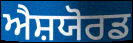
ਐਸ਼ਯੋਰਡ